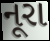
નૂરા